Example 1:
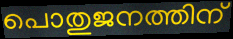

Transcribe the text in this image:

പൊതുജനത്തിന്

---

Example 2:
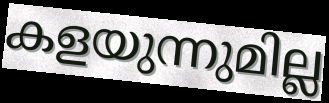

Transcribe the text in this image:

കളയുന്നുമില്ല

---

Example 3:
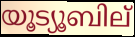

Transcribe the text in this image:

യൂട്യൂബില്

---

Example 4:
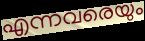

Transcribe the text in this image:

എന്നവരെയും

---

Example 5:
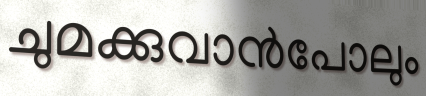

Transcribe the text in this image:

ചുമക്കുവാൻപോലും